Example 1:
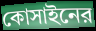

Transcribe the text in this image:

কোসাইনের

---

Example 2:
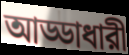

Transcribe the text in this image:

আড্ডাধারী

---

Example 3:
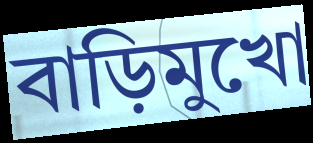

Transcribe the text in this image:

বাড়িমুখো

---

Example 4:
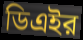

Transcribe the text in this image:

ডিএইর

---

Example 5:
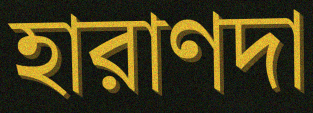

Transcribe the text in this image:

হারাণদা